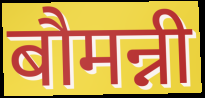
बौमन्नी